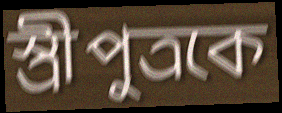
স্ত্রীপুত্রকে